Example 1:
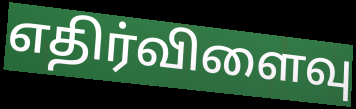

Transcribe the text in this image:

எதிர்விளைவு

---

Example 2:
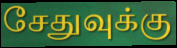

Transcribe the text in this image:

சேதுவுக்கு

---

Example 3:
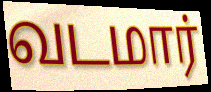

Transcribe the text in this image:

வடமார்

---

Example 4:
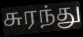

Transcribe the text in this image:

சுரந்து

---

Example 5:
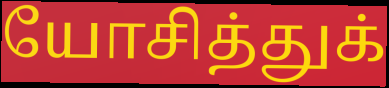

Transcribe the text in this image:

யோசித்துக்